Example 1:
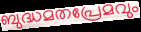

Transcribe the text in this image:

ബുദ്ധമതപ്രേമവും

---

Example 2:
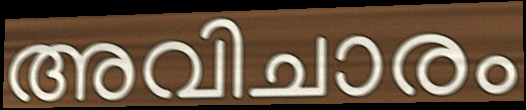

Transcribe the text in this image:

അവിചാരം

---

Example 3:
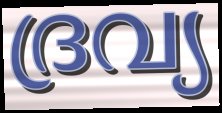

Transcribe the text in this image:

ദ്രവ്യ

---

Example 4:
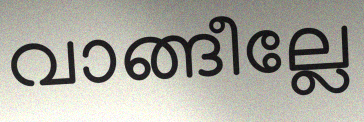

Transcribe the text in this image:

വാങ്ങീല്ലേ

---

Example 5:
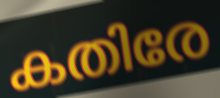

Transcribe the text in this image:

കതിരേ